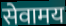
सेवामय